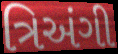
ત્રિઅંગી